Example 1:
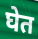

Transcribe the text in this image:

घेत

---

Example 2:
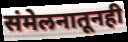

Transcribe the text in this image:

संमेलनातूनही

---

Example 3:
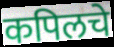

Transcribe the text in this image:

कपिलचे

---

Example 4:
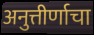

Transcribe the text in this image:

अनुत्तीर्णाचा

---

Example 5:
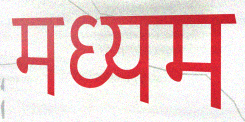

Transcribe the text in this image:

मध्यम